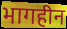
भागहीन